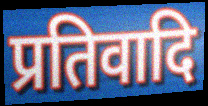
प्रतिवादि